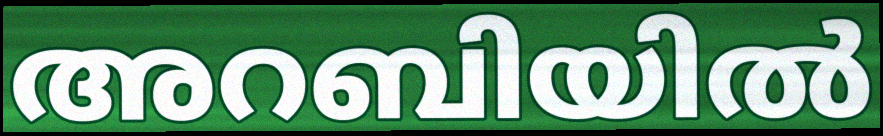
അറബിയിൽ